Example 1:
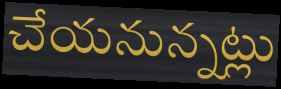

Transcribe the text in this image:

చేయనున్నట్లు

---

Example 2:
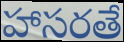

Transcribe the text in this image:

హాసరతే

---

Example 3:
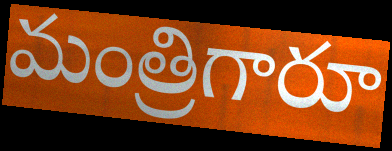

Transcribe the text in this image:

మంత్రిగారూ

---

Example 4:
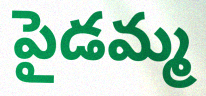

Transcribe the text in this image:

పైడమ్మ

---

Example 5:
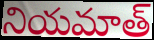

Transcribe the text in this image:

నియమాత్